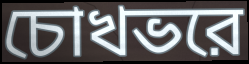
চোখভরে